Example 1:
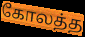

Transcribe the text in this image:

கோலத்த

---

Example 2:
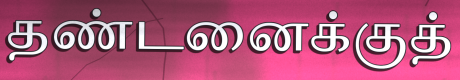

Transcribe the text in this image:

தண்டனைக்குத்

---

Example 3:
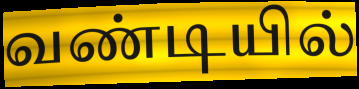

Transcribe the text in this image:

வண்டியில்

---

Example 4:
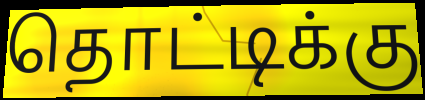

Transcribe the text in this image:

தொட்டிக்கு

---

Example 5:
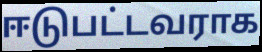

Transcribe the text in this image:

ஈடுபட்டவராக